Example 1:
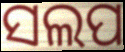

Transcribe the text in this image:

ସଲପ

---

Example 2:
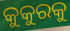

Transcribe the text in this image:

କୁକୁରକୁ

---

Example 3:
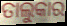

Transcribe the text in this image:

ତାଲୁକାର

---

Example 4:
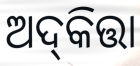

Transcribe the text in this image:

ଅଦ୍‌କିତ୍ତା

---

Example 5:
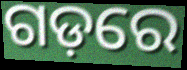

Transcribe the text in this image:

ଗଡ଼ରେ